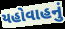
યહોવાહનું